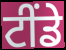
ਟੀਂਡੇ